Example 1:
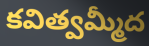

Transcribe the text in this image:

కవిత్వమ్మీద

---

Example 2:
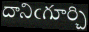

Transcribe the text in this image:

దానిఁగూర్చి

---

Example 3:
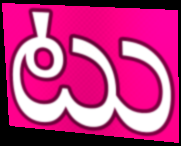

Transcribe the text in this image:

టు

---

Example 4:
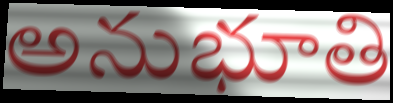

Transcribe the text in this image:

అనుభూతి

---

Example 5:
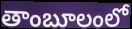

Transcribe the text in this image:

తాంబూలంలో